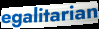
egalitarian